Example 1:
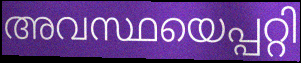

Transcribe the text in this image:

അവസ്ഥയെപ്പറ്റി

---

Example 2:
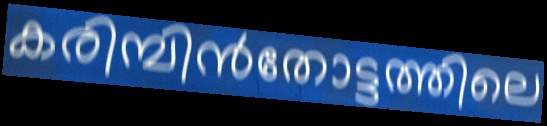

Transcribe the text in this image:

കരിമ്പിൻതോട്ടത്തിലെ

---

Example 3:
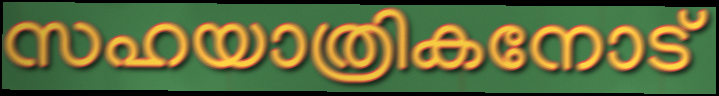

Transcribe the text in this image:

സഹയാത്രികനോട്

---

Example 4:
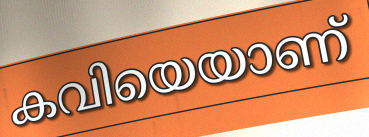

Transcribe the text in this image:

കവിയെയാണ്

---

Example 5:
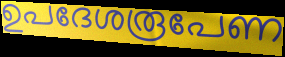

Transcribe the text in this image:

ഉപദേശരൂപേണ